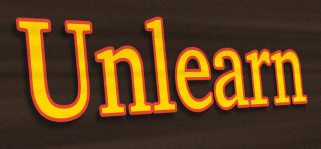
Unlearn